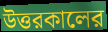
উত্তরকালের